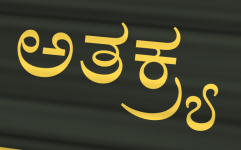
ಅತಕ್ರ್ಯ